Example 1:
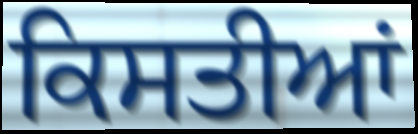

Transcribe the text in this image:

ਕਿਸਤੀਆਂ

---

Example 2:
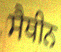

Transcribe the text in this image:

ਸੈਥੀਨ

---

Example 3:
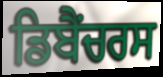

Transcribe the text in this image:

ਡਿਬੈਂਚਰਸ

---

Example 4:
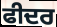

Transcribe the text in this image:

ਫੀਦਰ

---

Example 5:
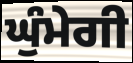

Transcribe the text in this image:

ਘੁੰਮੇਗੀ